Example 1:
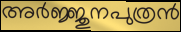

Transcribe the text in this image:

അർജ്ജുനപുത്രൻ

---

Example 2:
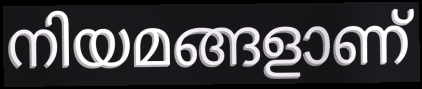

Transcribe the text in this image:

നിയമങ്ങളാണ്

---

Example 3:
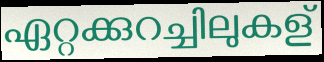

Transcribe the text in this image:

ഏറ്റക്കുറച്ചിലുകള്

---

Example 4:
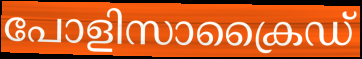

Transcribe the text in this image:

പോളിസാക്രൈഡ്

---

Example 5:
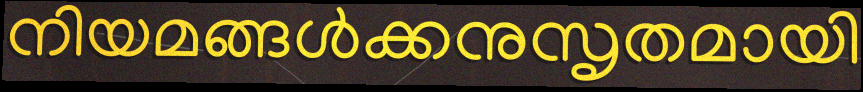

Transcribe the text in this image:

നിയമങ്ങൾക്കനുസൃതമായി